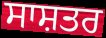
ਸਾਸ਼ਤਰ